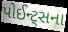
પોઈન્ટ્સના